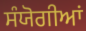
ਸੰਯੋਗੀਆਂ